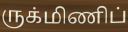
ருக்மிணிப்